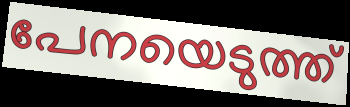
പേനയെടുത്ത്